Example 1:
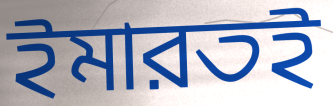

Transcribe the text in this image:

ইমারতই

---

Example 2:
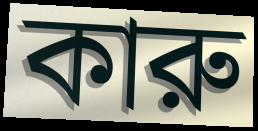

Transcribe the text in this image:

কারু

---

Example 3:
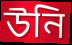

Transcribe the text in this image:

উনি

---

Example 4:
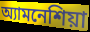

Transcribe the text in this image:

অ্যামনেশিয়া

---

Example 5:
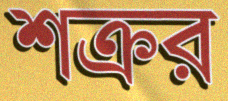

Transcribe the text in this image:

শক্রর